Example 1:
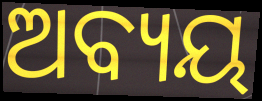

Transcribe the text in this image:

ଅବ୍ୟୟ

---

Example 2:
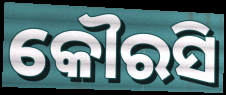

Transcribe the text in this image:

କୌରସି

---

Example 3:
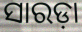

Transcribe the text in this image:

ସାରଡ଼ା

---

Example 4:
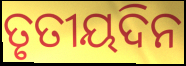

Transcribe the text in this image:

ତୃତୀୟଦିନ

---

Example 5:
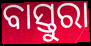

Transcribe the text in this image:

ବାସ୍ତୁରା